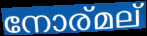
നോര്മല്